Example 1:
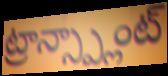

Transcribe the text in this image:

ట్రాన్స్ప్లాంట్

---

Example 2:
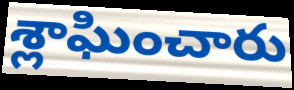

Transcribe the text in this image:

శ్లాఘించారు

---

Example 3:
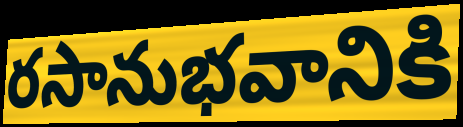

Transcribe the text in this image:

రసానుభవానికి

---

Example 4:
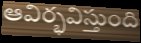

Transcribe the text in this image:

ఆవిర్భవిస్తుంది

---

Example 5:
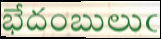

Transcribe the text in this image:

భేదంబులుఁ